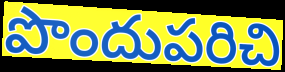
పొందుపరిచి